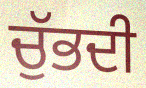
ਚੁੱਭਦੀ